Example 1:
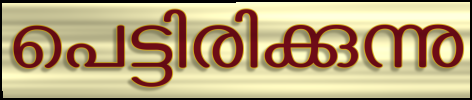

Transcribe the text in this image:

പെട്ടിരിക്കുന്നു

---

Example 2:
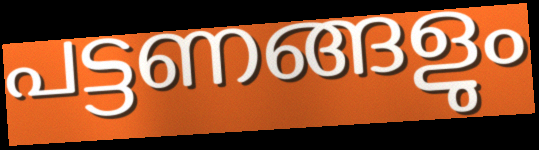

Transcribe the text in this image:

പട്ടണങ്ങളും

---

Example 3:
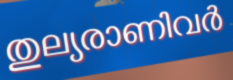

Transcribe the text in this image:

തുല്യരാണിവർ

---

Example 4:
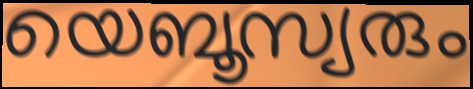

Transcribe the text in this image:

യെബൂസ്യരും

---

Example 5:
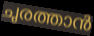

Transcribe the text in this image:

ചുരത്താൻ